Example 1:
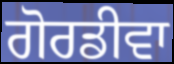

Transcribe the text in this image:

ਗੋਰਡੀਵਾ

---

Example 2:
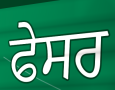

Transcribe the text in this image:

ਫੇਸਰ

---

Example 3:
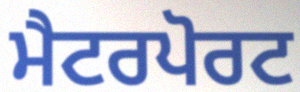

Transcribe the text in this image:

ਮੈਟਰਪੋਰਟ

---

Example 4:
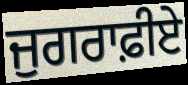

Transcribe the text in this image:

ਜੁਗਰਾਫ਼ੀਏ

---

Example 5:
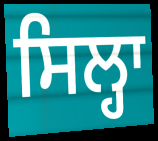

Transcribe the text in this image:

ਸਿਲ੍ਹਾ